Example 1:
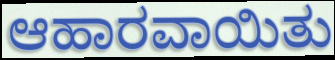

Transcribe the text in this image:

ಆಹಾರವಾಯಿತು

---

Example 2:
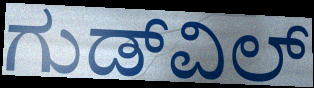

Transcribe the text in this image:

ಗುಡ್‌ವಿಲ್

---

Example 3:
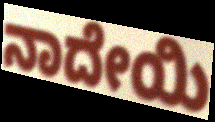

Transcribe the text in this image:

ನಾದೇಯಿ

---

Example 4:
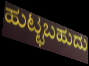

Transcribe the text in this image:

ಹುಟ್ಟಬಹುದು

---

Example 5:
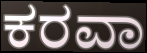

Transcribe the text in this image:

ಕರವಾ